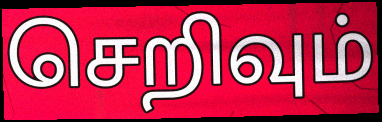
செறிவும்